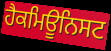
ਹੈਕਮਿਊਨਿਸਟ